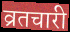
व्रतचारी